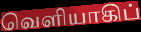
வெளியாகிப்